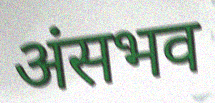
अंसभव